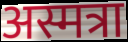
अस्मत्रा